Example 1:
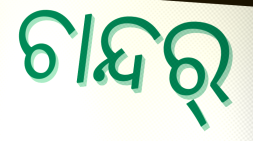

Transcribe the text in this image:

ଚାନ୍ଦର୍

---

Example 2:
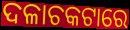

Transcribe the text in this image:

ଦଳାଚକଟାରେ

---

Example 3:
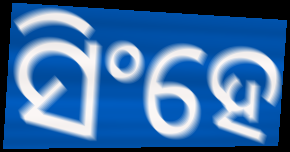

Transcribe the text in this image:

ସିଂହେ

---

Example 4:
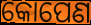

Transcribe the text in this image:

କୋପେଣ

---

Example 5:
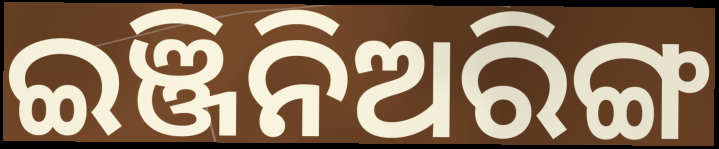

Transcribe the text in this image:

ଇଞ୍ଜିନିଅରିଙ୍ଗ